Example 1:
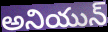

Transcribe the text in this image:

అనియున్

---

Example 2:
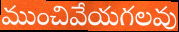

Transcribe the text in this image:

ముంచివేయగలవు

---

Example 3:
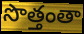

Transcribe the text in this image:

సొత్తంతా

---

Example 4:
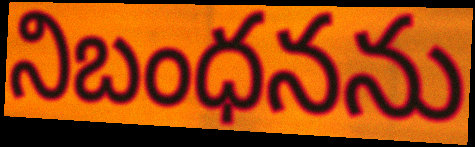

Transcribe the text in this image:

నిబంధనను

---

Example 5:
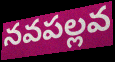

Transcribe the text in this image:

నవపల్లవ